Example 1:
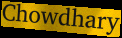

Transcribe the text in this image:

Chowdhary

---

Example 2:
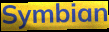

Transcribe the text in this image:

Symbian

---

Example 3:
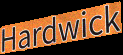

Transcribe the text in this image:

Hardwick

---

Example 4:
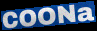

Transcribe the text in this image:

COONa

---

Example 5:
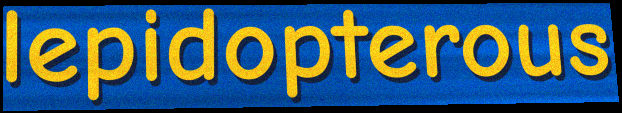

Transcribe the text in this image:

lepidopterous